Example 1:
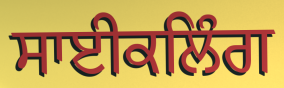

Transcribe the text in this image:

ਸਾਈਕਲਿੰਗ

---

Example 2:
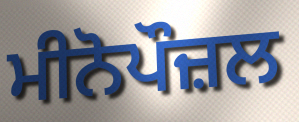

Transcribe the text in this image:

ਮੀਨੋਪੌਜ਼ਲ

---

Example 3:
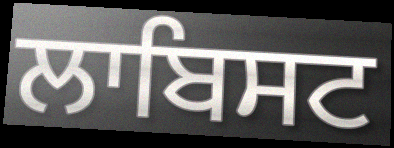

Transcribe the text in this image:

ਲਾਬਿਸਟ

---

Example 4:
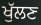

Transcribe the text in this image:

ਖੁੱਲਣ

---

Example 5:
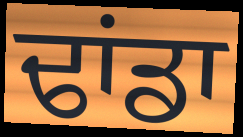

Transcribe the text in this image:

ਢਾਂਡਾ